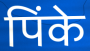
पिंके